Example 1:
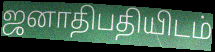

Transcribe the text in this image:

ஜனாதிபதியிடம்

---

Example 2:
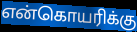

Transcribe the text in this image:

என்கொயரிக்கு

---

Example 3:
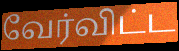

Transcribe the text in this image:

வேர்விட்ட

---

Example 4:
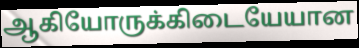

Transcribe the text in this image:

ஆகியோருக்கிடையேயான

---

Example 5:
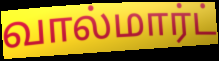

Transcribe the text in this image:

வால்மார்ட்